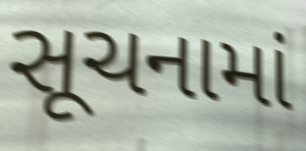
સૂચનામાં